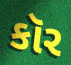
કૉર